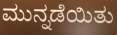
ಮುನ್ನಡೆಯಿತು